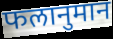
फलानुमान